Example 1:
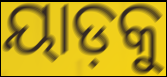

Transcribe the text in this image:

ୟାଡ଼କୁ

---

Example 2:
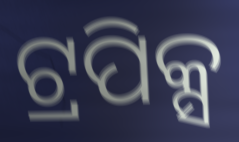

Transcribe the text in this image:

ଟ୍ରପିକ୍ସ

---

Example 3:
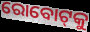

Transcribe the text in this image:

ରୋବୋଟ୍‌କୁ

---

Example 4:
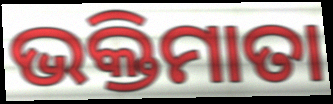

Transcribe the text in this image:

ଭକ୍ତିମାତା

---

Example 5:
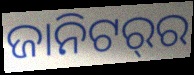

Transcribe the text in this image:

ଜାନିଟର୍‌ର